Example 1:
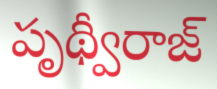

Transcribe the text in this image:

పృథ్వీరాజ్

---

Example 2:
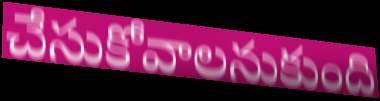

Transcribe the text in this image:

చేసుకోవాలనుకుంది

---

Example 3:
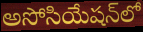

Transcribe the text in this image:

అసోసియేషన్‌లో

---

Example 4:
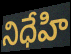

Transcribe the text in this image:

నిధేహి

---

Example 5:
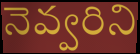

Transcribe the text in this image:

నెవ్వరిని